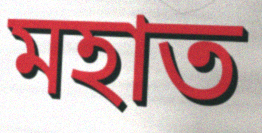
মহাত